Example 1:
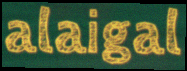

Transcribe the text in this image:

alaigal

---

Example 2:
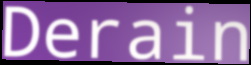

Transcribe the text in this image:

Derain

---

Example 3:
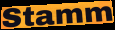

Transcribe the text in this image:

Stamm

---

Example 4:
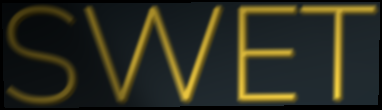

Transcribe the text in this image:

SWET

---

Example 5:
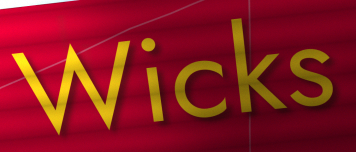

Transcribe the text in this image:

Wicks